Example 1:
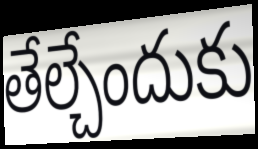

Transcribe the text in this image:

తేల్చేందుకు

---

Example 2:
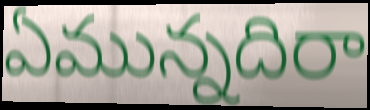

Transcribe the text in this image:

ఏమున్నదిరా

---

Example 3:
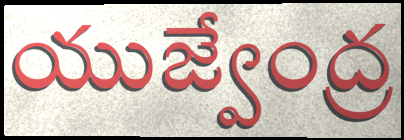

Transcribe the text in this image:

యుజ్వేంద్ర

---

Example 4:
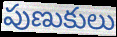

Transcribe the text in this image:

పుణుకులు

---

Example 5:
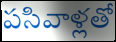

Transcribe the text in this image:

పసివాళ్లతో